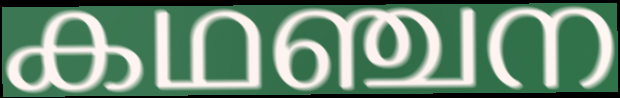
കഥഞ്ചന